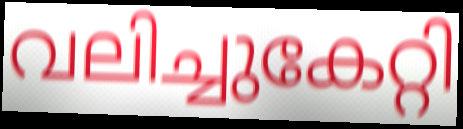
വലിച്ചുകേറ്റി